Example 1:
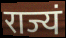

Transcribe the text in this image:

राज्यं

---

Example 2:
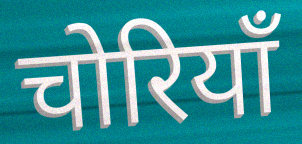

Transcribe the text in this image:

चोरियाँ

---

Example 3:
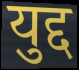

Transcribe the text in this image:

युद्द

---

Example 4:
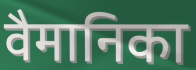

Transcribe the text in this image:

वैमानिका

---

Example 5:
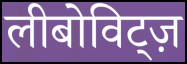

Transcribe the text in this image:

लीबोविट्ज़